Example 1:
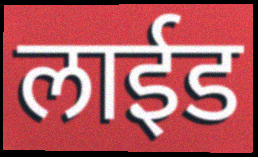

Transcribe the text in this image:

लाईड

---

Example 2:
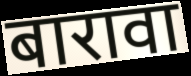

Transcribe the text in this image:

बारावा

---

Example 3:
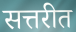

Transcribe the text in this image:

सत्तरीत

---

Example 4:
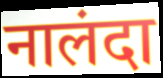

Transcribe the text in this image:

नालंदा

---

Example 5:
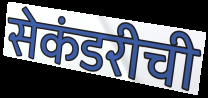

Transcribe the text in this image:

सेकंडरीची